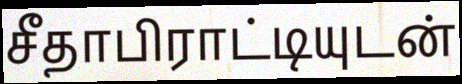
சீதாபிராட்டியுடன்